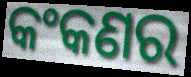
କଂକଣର